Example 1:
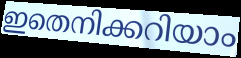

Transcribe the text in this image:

ഇതെനിക്കറിയാം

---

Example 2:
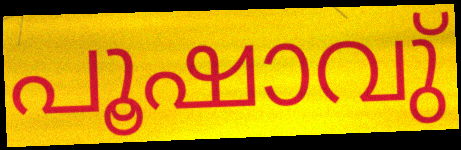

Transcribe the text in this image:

പൂഷാവു്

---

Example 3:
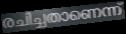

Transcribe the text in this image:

രചിച്ചതാണെന്ന്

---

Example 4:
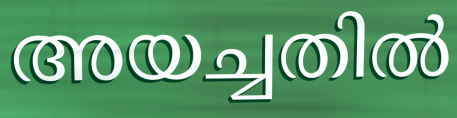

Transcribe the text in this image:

അയച്ചതിൽ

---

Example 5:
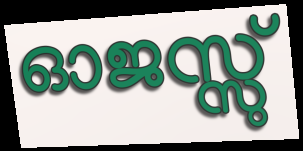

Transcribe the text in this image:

ഓജസ്സു്